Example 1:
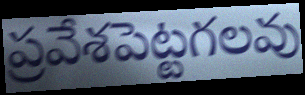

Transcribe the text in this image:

ప్రవేశపెట్టగలవు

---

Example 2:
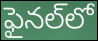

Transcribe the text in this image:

ఫైనల్‌లో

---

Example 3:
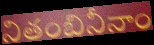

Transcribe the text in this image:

నితంబినీనాం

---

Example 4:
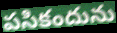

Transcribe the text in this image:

పసికందును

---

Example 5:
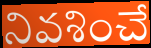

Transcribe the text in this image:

నివశించే